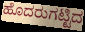
ಹೊದರುಗಟ್ಟಿದ